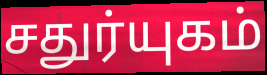
சதுர்யுகம்